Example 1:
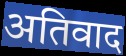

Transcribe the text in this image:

अतिवाद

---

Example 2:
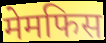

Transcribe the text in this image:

मेमफिस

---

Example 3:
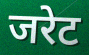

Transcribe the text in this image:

जरेट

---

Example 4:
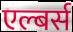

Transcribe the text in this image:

एल्बर्स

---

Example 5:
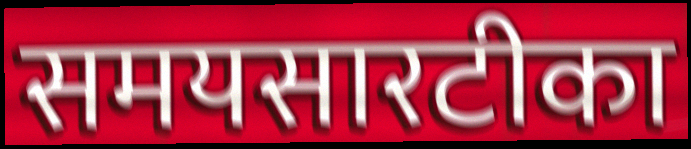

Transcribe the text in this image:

समयसारटीका